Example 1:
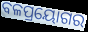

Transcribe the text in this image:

ବଳପ୍ରୟୋଗର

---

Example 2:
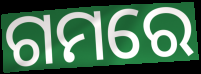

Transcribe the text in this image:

ଗମରେ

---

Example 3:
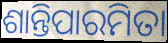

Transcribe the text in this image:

ଶାନ୍ତିପାରମିତା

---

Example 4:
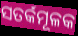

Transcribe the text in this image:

ସତର୍କମୂଳକ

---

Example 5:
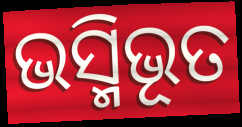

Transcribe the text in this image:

ଭସ୍ମିଭୂତ